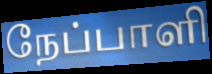
நேப்பாளி